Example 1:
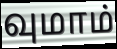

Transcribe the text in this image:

வுமாம்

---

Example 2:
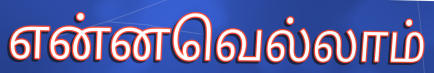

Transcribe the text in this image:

என்னவெல்லாம்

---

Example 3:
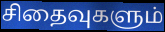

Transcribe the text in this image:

சிதைவுகளும்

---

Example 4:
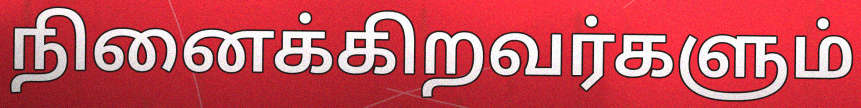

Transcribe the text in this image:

நினைக்கிறவர்களும்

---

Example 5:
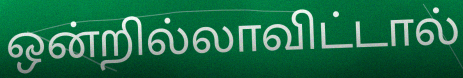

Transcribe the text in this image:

ஒன்றில்லாவிட்டால்